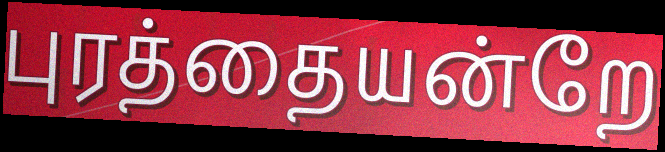
புரத்தையன்றே